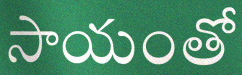
సాయంతో